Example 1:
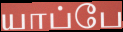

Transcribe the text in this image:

யாப்பே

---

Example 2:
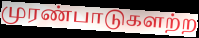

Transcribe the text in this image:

முரண்பாடுகளற்ற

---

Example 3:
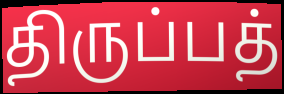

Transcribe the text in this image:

திருப்பத்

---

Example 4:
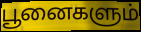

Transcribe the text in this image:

பூனைகளும்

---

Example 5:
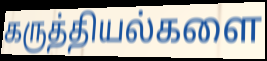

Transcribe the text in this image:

கருத்தியல்களை